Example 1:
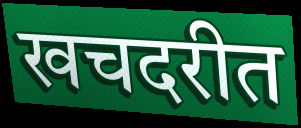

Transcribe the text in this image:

खचदरीत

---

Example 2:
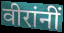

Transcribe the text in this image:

वीरांनीं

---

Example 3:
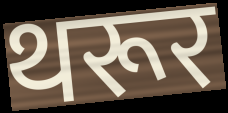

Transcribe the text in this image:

थरूर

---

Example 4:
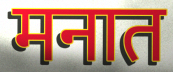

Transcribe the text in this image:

मनात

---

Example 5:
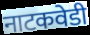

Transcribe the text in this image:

नाटकवेडी